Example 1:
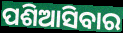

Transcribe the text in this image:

ପଶିଆସିବାର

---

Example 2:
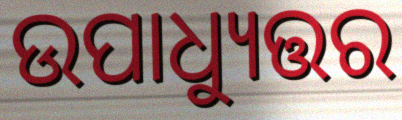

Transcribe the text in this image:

ଉପାଧ୍ୟୁତ୍ତର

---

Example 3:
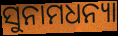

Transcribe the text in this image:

ସୁନାମଧନ୍ୟା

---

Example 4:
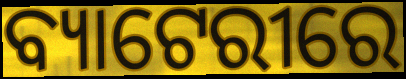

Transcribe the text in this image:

ବ୍ୟାଟେରୀରେ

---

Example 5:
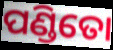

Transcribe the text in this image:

ପଣ୍ଡିତୋ